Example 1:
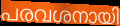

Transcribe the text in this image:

പരവശനായി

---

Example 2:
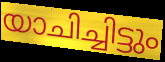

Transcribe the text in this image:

യാചിച്ചിട്ടും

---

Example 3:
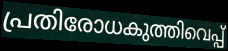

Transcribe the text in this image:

പ്രതിരോധകുത്തിവെപ്പ്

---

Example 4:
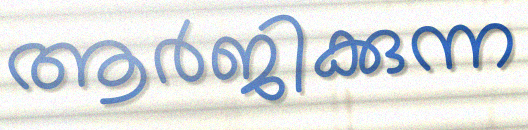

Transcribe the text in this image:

ആർജിക്കുന്ന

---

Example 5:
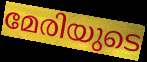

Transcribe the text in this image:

മേരിയുടെ